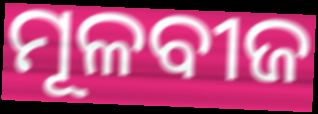
ମୂଳବୀଜ